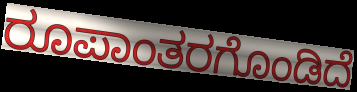
ರೂಪಾಂತರಗೊಂಡಿದೆ